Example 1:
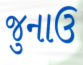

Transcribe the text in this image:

જુનાઉ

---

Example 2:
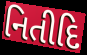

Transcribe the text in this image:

નિતીદિ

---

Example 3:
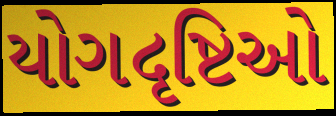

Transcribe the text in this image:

યોગદૃષ્ટિઓ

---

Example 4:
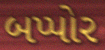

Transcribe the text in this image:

બપ્પોર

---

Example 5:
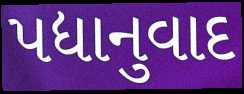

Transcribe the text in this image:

પદ્યાનુવાદ